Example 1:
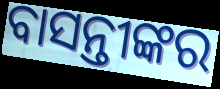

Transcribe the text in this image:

ବାସନ୍ତୀଙ୍କର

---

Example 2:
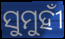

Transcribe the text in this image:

ସୁମୁହୀଁ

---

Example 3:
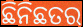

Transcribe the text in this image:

ଛିନିଛତର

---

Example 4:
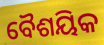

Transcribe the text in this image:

ବୈଶୟିକ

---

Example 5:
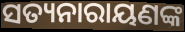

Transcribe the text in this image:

ସତ୍ୟନାରାୟଣଙ୍କ